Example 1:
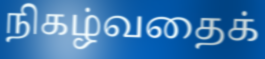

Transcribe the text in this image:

நிகழ்வதைக்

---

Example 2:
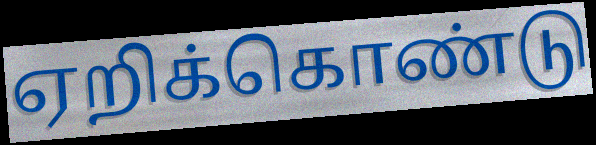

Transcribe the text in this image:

ஏறிக்கொண்டு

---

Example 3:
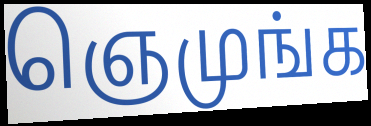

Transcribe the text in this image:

ஞெமுங்க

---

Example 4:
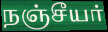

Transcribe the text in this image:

நஞ்சீயர்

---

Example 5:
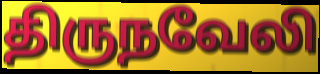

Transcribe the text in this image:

திருநவேலி